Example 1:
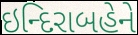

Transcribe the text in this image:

ઇન્દિરાબહેને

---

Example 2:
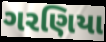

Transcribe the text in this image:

ગરણિયા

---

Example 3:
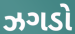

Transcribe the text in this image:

ઝગડો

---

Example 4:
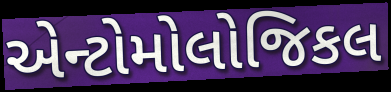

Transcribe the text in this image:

એન્ટોમોલોજિકલ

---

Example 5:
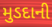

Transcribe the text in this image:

મુડદાની